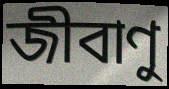
জীবাণু